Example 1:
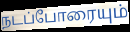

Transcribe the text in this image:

நடப்போரையும்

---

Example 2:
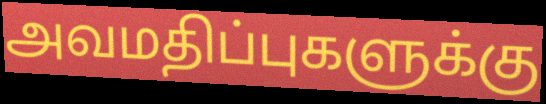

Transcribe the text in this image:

அவமதிப்புகளுக்கு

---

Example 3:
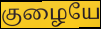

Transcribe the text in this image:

குழையே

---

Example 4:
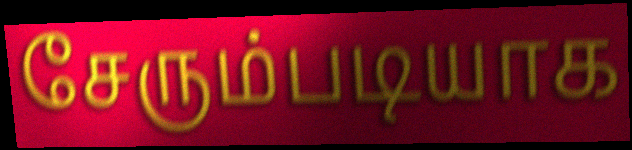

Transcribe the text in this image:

சேரும்படியாக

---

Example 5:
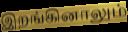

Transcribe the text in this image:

இறங்கினாலும்